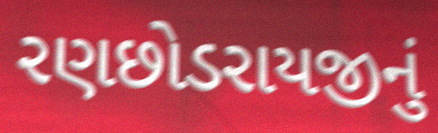
રણછોડરાયજીનું